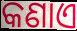
କଣାଏ